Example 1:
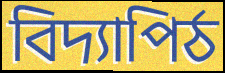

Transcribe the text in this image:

বিদ্যাপিঠ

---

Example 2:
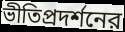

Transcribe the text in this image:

ভীতিপ্রদর্শনের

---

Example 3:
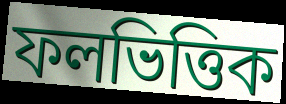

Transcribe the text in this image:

ফলভিত্তিক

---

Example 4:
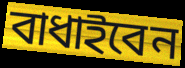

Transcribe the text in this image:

বাধাইবেন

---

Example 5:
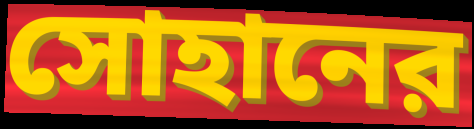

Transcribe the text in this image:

সোহানের